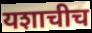
यशाचीच